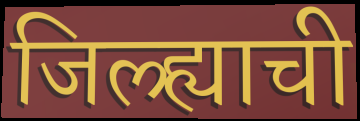
जिल्ह्याची